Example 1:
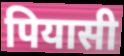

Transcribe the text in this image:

पियासी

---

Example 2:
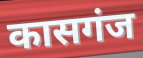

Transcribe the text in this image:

कासगंज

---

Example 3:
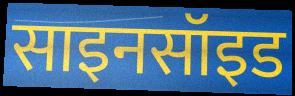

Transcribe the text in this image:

साइनसॉइड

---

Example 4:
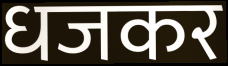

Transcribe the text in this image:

धजकर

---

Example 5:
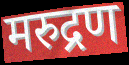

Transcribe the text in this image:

मरुद्रण